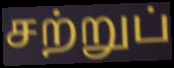
சற்றுப்